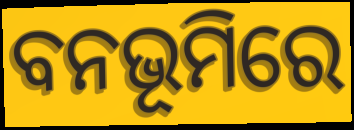
ବନଭୂମିରେ